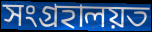
সংগ্ৰহালয়ত